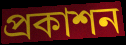
প্রকাশন